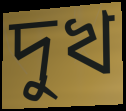
দুখ